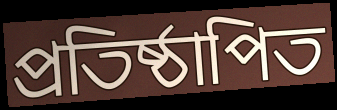
প্ৰতিষ্ঠাপিত